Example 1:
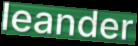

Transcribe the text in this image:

leander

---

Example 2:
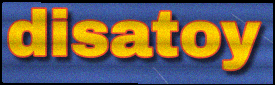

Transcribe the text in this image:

disatoy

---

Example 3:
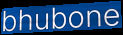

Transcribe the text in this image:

bhubone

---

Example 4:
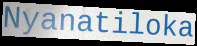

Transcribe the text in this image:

Nyanatiloka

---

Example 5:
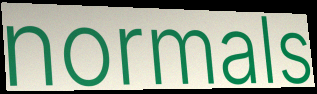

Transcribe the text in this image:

normals